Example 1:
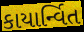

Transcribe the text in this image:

કાયાર્ન્વિત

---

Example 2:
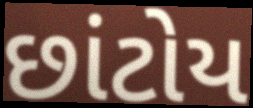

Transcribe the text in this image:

છાંટોય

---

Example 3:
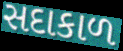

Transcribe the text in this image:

સદાકાળ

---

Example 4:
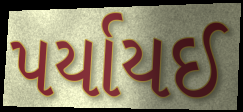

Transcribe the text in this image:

પર્યાયઈ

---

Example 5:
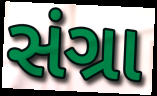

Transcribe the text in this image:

સંગ્રા